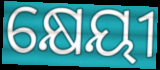
କ୍ଷେୟୀ